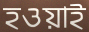
হওয়াই